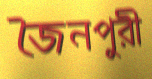
জৈনপুরী